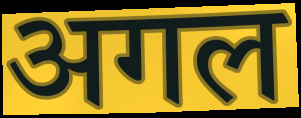
अगल